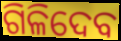
ଗିଳିଦେବ